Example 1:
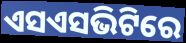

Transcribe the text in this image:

ଏସଏସଭିଟିରେ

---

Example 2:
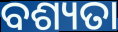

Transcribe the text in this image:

ବଶ୍ୟତା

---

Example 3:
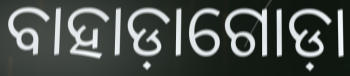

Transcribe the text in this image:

ବାହାଡ଼ାଗୋଡ଼ା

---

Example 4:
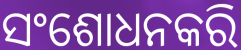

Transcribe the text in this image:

ସଂଶୋଧନକରି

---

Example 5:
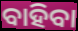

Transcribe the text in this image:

ବାହିବା